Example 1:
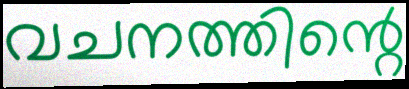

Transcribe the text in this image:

വചനത്തിന്റെ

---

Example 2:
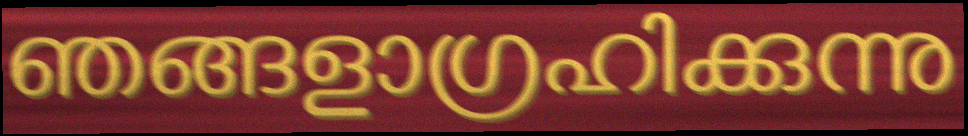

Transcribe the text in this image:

ഞങ്ങളാഗ്രഹിക്കുന്നു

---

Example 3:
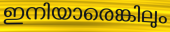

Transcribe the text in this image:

ഇനിയാരെങ്കിലും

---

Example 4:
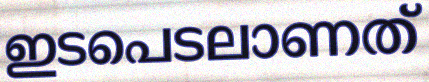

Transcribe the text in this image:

ഇടപെടലാണത്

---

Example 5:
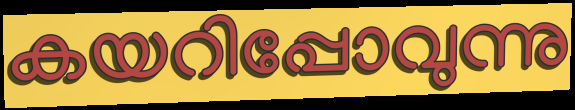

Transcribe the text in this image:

കയറിപ്പോവുന്നു